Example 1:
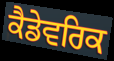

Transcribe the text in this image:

ਕੈਡੇਵਰਿਕ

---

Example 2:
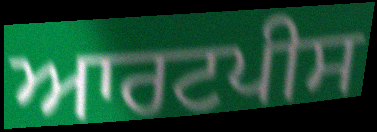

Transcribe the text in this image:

ਆਰਟਪੀਸ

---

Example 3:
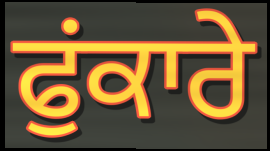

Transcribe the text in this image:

ਫੁਂਕਾਰੇ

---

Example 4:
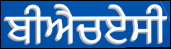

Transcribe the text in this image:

ਬੀਐਚਏਸੀ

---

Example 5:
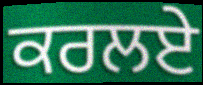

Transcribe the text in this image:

ਕਰਲਏ